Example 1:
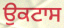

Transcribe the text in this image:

ਉਕਟਾਸ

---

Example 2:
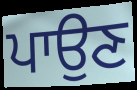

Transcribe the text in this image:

ਪਾਉਣ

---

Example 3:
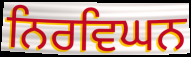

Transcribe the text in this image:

ਨਿਰਵਿਘਨ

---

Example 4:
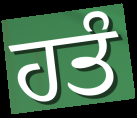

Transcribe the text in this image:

ਹਤੰ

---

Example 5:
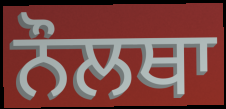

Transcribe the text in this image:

ਨੌਲਥਾ